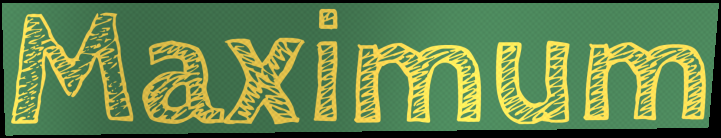
Maximum